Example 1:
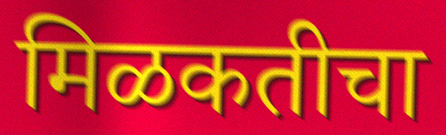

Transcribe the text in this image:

मिळकतीचा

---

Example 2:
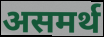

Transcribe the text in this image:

असमर्थ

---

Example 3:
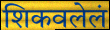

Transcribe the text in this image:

शिकवलेलं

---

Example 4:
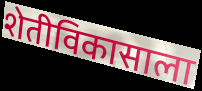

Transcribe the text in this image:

शेतीविकासाला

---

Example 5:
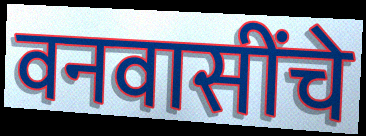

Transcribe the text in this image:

वनवासींचे